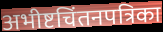
अभीष्टचिंतनपत्रिका